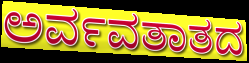
ಅರ್ವವತಾತದ